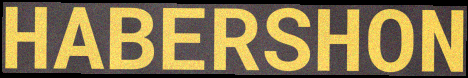
HABERSHON